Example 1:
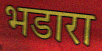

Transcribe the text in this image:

भडारा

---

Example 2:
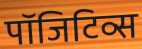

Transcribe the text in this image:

पॉजिटिव्स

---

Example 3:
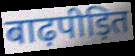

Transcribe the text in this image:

बाढ़पीड़ित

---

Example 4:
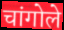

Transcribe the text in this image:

चांगोले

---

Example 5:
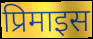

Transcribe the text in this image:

प्रिमाइस